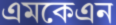
এমকেএন